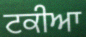
ਟਕੀਆ